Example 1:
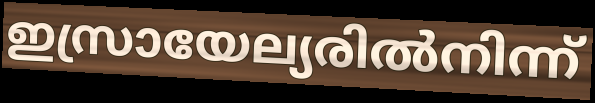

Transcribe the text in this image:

ഇസ്രായേല്യരിൽനിന്ന്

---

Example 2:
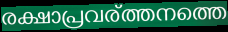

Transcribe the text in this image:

രക്ഷാപ്രവര്ത്തനത്തെ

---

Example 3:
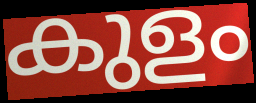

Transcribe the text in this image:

കുളം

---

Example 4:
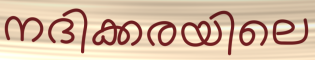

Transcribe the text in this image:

നദിക്കരയിലെ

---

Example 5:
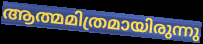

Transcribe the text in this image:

ആത്മമിത്രമായിരുന്നു